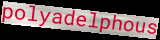
polyadelphous